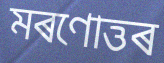
মৰণোত্তৰ